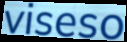
viseso